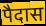
पैदास